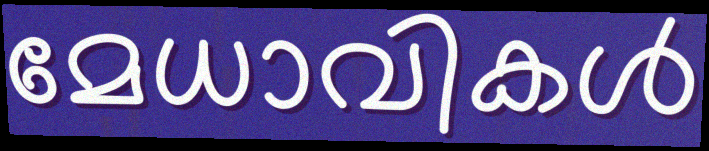
മേധാവികൾ